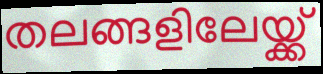
തലങ്ങളിലേയ്ക്ക്